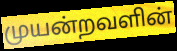
முயன்றவளின்